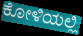
ಕೋಳಿಯಲ್ಲಿ